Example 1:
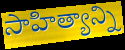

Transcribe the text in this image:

సాహిత్యాన్ని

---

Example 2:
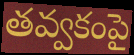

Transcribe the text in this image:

తవ్వకంపై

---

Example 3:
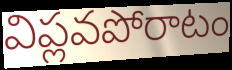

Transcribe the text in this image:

విప్లవపోరాటం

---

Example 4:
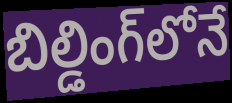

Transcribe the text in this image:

బిల్డింగ్‌లోనే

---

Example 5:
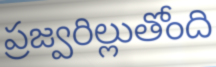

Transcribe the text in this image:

ప్రజ్వరిల్లుతోంది